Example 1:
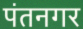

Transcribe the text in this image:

पंतनगर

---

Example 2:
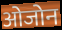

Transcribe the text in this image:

ओजोन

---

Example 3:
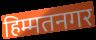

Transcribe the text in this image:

हिम्‍मतनगर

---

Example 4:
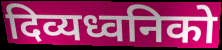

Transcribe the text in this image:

दिव्यध्वनिको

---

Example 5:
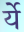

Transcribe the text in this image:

र्ये